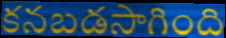
కనబడసాగింది